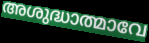
അശുദ്ധാത്മാവേ